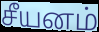
சீயனம்